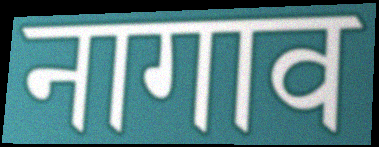
नागाव